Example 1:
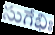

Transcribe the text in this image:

సుగేభిః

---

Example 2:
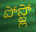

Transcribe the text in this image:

పోస్ట్లో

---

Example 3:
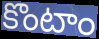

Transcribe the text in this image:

కొంటాం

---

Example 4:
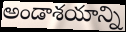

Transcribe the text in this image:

అండాశయాన్ని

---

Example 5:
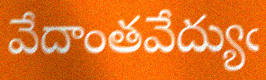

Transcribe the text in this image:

వేదాంతవేద్యుఁ